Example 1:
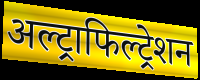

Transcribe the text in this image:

अल्ट्राफिल्ट्रेशन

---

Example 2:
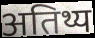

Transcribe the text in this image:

अतिथ्य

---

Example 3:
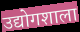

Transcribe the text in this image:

उद्योगशाला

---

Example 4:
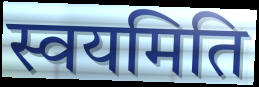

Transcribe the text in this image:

स्वयमिति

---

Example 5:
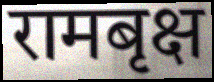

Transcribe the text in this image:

रामबृक्ष